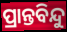
ପ୍ରାନ୍ତବିନ୍ଦୁ